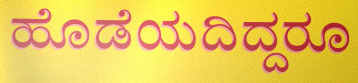
ಹೊಡೆಯದಿದ್ದರೂ